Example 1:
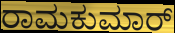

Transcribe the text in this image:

ರಾಮಕುಮಾರ್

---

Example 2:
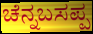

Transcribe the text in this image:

ಚೆನ್ನಬಸಪ್ಪ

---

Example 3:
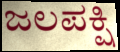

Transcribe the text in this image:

ಜಲಪಕ್ಷಿ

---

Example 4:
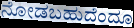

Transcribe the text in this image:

ನೋಡಬಹುದೆಂದೂ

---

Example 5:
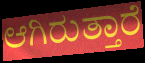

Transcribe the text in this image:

ಆಗಿರುತ್ತಾರೆ